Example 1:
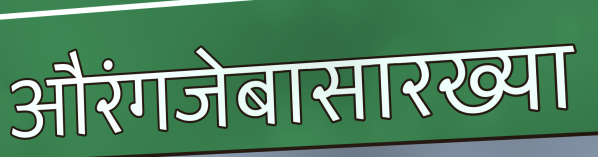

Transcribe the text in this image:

औरंगजेबासारख्या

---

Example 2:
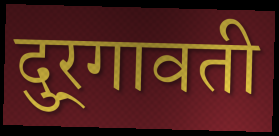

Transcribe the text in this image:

दुर्गावती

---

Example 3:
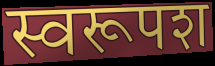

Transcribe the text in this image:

स्वरूपश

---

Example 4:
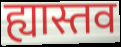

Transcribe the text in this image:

ह्यास्तव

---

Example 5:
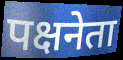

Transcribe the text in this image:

पक्षनेता